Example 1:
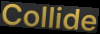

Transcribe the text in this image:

Collide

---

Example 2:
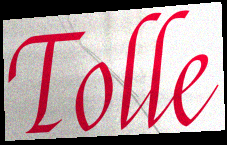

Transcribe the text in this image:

Tolle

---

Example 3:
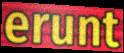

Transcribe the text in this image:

erunt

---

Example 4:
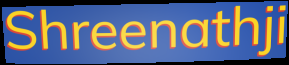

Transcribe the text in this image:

Shreenathji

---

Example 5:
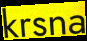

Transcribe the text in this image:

krsna